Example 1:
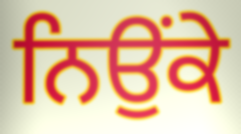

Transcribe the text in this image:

ਨਿਉਂਕੇ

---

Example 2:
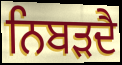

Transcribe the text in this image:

ਨਿਬੜਦੈ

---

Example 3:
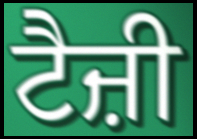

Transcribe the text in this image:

ਟੈਜ਼ੀ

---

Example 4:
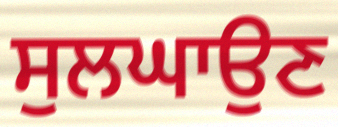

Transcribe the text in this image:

ਸੁਲਘਾਉਣ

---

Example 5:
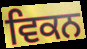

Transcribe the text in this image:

ਵਿਕਨ